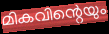
മികവിന്റെയും